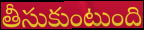
తీసుకుంటుంది